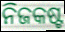
ନିଜକଷ୍ଟ